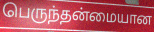
பெருந்தன்மையான